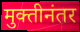
मुक्तीनंतर